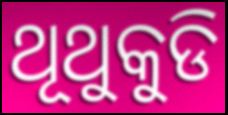
ଥୂଥୁକୁଡି